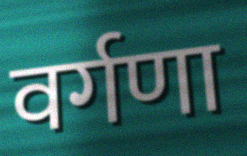
वर्गणा